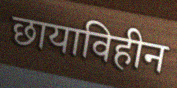
छायाविहीन